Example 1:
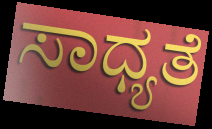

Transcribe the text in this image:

ಸಾಧ್ಯತೆ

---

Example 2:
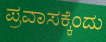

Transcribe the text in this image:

ಪ್ರವಾಸಕ್ಕೆಂದು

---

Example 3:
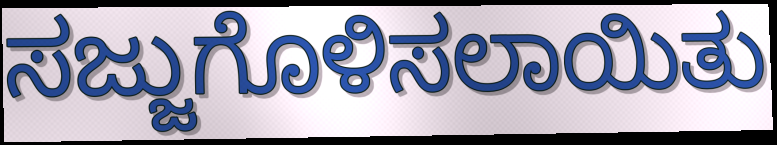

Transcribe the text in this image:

ಸಜ್ಜುಗೊಳಿಸಲಾಯಿತು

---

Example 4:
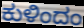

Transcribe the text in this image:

ಕುಳಿಂದಂ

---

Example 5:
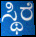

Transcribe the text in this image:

ಸ್ಥಿರೆ